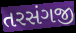
તરસંગજી